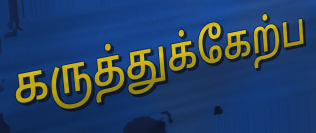
கருத்துக்கேற்ப